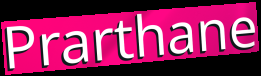
Prarthane